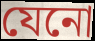
যেনো